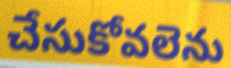
చేసుకోవలెను